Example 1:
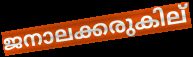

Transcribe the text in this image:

ജനാലക്കരുകില്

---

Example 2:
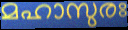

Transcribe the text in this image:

മഹാസുരഃ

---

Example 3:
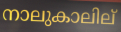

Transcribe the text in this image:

നാലുകാലില്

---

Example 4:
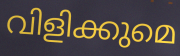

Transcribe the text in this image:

വിളിക്കുമെ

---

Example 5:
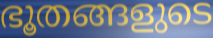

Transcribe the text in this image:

ഭൂതങ്ങളുടെ